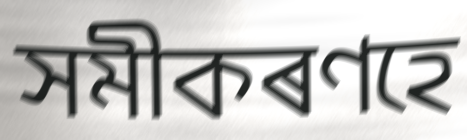
সমীকৰণহে